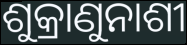
ଶୁକ୍ରାଣୁନାଶୀ